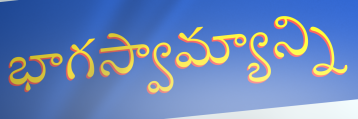
భాగస్వామ్యాన్ని